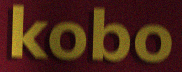
kobo